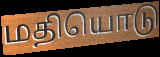
மதியொடு